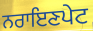
ਨਰਾਇਣਪੇਟ